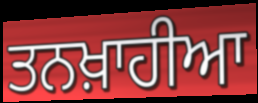
ਤਨਖ਼ਾਹੀਆ